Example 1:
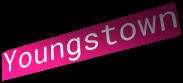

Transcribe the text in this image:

Youngstown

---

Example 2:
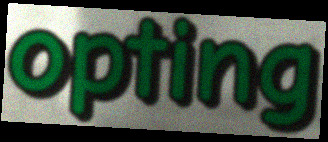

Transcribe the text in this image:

opting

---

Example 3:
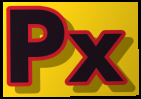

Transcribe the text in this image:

Px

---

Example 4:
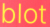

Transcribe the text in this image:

blot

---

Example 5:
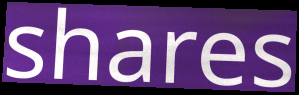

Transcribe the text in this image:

shares